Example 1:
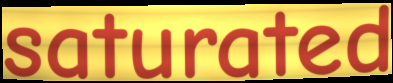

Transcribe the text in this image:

saturated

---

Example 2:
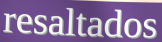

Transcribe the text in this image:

resaltados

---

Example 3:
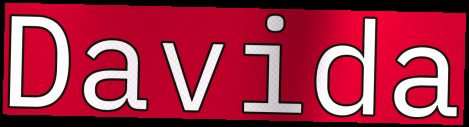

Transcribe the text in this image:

Davida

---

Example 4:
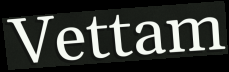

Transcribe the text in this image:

Vettam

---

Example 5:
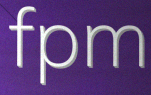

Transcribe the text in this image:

fpm